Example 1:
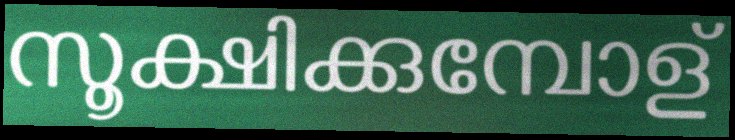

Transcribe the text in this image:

സൂക്ഷിക്കുമ്പോള്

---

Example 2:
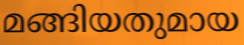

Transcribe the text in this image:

മങ്ങിയതുമായ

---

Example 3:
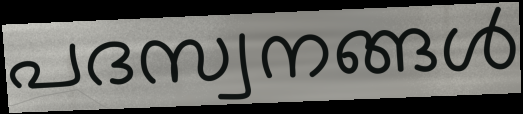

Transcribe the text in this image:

പദസ്വനങ്ങൾ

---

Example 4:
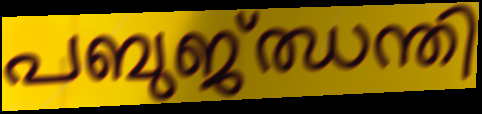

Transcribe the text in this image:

പബുജ്ഝന്തി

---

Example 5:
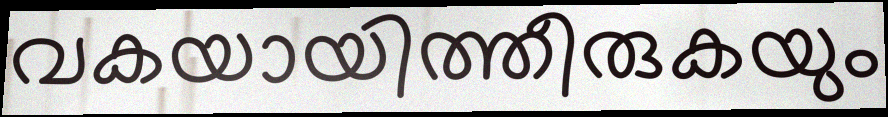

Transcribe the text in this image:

വകയായിത്തീരുകയും